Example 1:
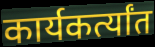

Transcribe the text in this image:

कार्यकर्त्यांत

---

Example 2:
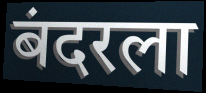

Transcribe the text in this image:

बंदरला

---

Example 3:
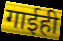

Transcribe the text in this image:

गाईही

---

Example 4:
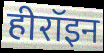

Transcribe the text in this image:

हीरॉइन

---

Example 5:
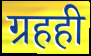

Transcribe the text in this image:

ग्रहही